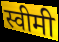
स्वीमी